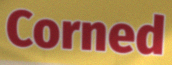
Corned